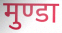
मुण्डा